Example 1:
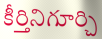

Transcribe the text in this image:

కీర్తినిగూర్చి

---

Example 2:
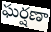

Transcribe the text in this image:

ఘర్షణా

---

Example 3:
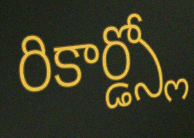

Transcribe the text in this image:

రికార్డ్స్లో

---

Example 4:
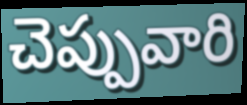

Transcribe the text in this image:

చెప్పువారి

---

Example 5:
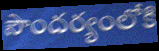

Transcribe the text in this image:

సౌందర్యంలోకి